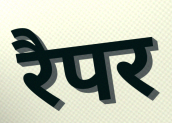
रैपर